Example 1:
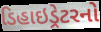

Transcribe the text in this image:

ડિહાઇડ્રેટરનો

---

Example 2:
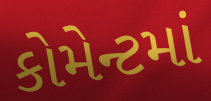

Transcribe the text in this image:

કોમેન્ટમાં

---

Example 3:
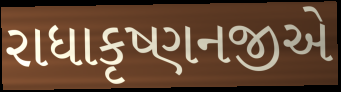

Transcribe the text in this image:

રાધાકૃષ્ણનજીએ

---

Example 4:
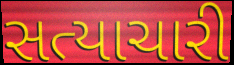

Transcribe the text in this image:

સત્યાચારી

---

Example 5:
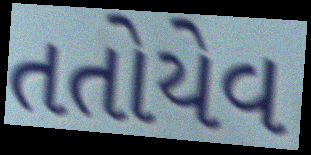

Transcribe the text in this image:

તતોયેવ